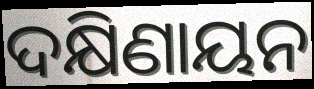
ଦକ୍ଷିଣାୟନ